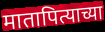
मातापित्याच्या